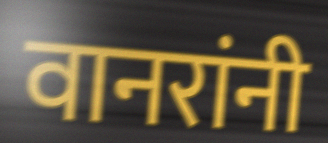
वानरांनी